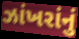
ઝાંખરાંનું